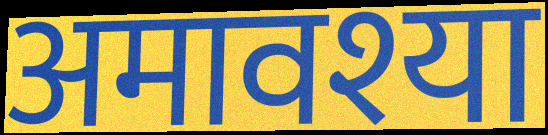
अमावश्या